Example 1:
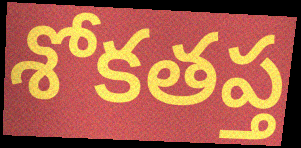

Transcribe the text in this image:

శోకతప్త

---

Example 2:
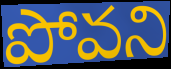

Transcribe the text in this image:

పోవని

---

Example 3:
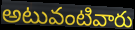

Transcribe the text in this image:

అటువంటివారు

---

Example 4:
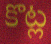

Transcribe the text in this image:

కొట్ల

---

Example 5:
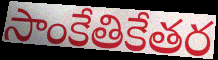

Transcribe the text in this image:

సాంకేతికేతర